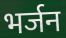
भर्जन